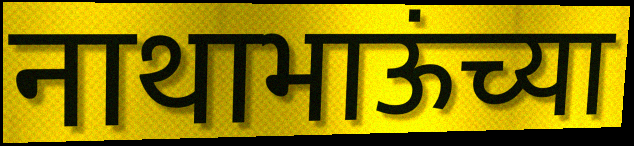
नाथाभाऊंच्या